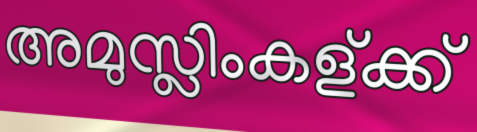
അമുസ്ലിംകള്ക്ക്